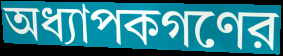
অধ্যাপকগণের